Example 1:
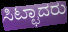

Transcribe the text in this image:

ಸಿಟ್ಟಾದರು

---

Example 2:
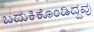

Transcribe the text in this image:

ಬದುಕಿಕೊಂಡಿದ್ದವು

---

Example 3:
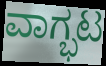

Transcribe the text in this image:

ವಾಗ್ಭಟ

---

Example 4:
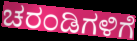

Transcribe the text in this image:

ಚರಂಡಿಗಳಿಗೆ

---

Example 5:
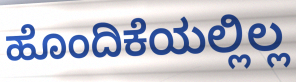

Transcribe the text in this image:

ಹೊಂದಿಕೆಯಲ್ಲಿಲ್ಲ